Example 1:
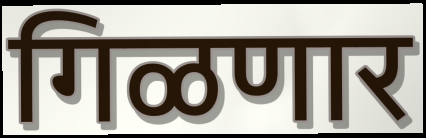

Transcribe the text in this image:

गिळणार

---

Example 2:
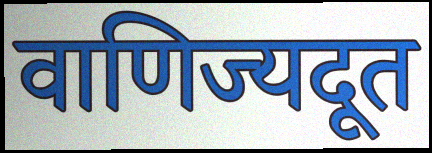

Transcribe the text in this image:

वाणिज्यदूत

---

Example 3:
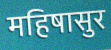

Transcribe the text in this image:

महिषासुर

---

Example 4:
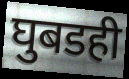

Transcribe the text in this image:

घुबडही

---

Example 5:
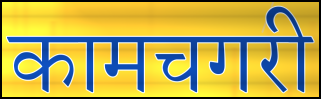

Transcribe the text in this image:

कामचगरी